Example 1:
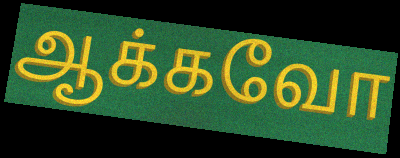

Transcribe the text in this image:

ஆக்கவோ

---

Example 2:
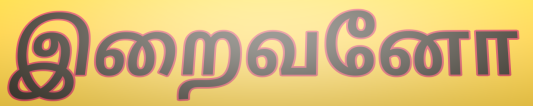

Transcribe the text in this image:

இறைவனோ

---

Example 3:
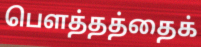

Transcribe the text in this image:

பௌத்தத்தைக்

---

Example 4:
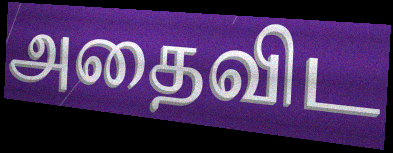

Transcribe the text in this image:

அதைவிட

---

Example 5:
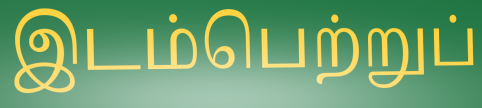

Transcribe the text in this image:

இடம்பெற்றுப்